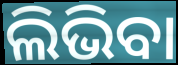
ଲିଭିବା